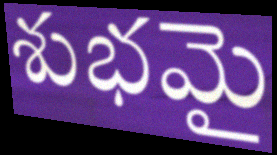
శుభమై